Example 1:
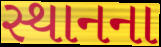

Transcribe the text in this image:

સ્થાનના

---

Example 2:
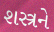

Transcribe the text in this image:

શસ્ત્રને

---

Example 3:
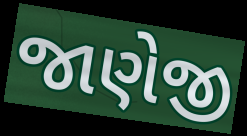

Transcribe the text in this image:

જાણેજી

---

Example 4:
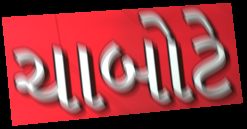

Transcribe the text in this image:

ચાબોટે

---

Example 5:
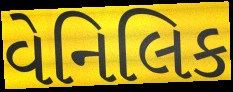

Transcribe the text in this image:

વેનિલિક